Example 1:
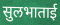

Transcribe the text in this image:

सुलभाताई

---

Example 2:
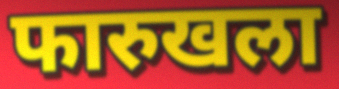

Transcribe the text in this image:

फारुखला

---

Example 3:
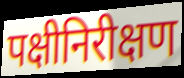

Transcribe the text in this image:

पक्षीनिरीक्षण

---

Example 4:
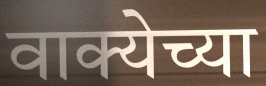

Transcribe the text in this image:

वाक्येच्या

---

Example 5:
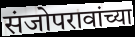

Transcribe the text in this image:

संजोपरावांच्या